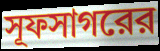
সূফসাগরের